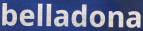
belladona